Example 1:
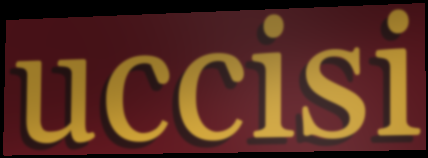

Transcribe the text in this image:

uccisi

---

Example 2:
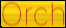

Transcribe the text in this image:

Orch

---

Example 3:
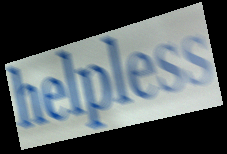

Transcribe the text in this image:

helpless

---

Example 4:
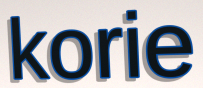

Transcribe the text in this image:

korie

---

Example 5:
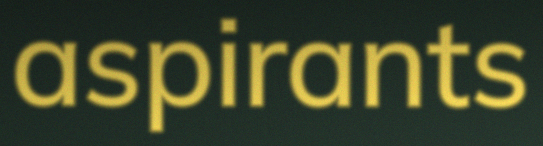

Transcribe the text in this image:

aspirants